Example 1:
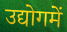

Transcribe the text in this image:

उद्योगमें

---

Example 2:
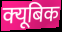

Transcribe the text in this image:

क्‍यूबिक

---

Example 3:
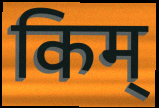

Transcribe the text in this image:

किम्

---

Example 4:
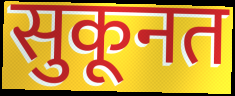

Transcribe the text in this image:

सुकूनत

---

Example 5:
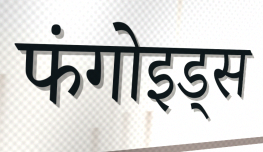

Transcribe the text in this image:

फंगोइड्स